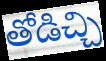
తోడిచ్చి